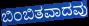
ಬಿಂಬಿತವಾದವು